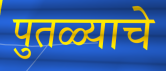
पुतळ्याचे